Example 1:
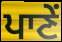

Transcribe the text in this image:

ਪਾਣੇਂ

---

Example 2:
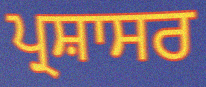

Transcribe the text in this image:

ਪ੍ਰਸ਼ਾਸਰ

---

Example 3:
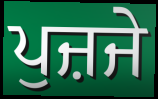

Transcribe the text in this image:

ਪੁਜ਼ਜੇ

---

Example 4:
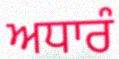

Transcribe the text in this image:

ਅਧਾਰੰ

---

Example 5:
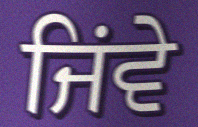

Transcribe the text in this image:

ਜਿਂਵੇ